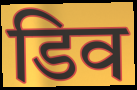
डिव